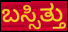
ಬಸ್ಸಿತ್ತು